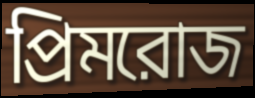
প্রিমরোজ